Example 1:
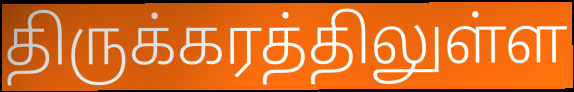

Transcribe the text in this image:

திருக்கரத்திலுள்ள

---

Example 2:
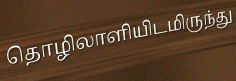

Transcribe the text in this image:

தொழிலாளியிடமிருந்து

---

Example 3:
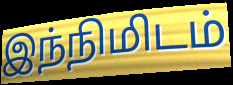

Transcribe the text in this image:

இந்நிமிடம்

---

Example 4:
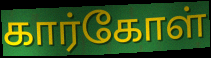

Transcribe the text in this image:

கார்கோள்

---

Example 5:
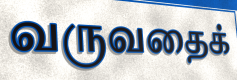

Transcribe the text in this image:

வருவதைக்